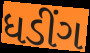
ધડીંગ